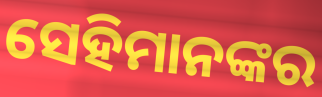
ସେହିମାନଙ୍କର